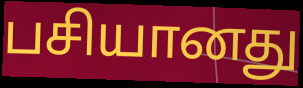
பசியானது